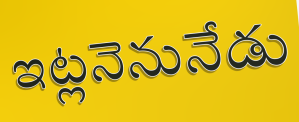
ఇట్లనెనునేడు